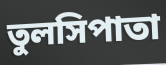
তুলসিপাতা